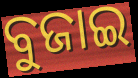
ବୁଜାଇ